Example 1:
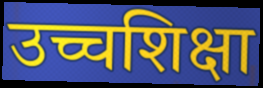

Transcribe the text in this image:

उच्‍चशिक्षा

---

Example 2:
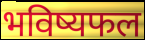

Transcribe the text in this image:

भविष्‍यफल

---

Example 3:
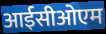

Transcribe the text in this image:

आईसीओएम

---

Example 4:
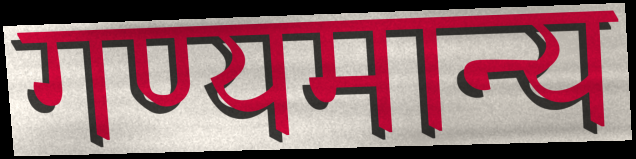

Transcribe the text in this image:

गण्यमान्य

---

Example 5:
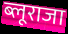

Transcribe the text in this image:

ब्लूराजा